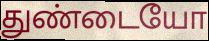
துண்டையோ